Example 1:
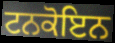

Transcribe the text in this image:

ਟਨਕੋਇਨ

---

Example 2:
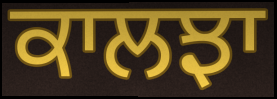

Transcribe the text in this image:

ਕਾਲਝਾ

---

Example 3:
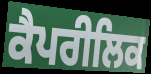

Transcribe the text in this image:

ਕੈਪਰੀਲਿਕ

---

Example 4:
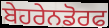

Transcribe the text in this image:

ਬੇਹਰੇਨਡੋਰਫ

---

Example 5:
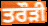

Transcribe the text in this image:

ਤਰੌੜੀ